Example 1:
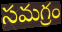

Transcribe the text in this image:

సమగ్రం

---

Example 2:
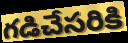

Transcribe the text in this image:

గడిచేసరికి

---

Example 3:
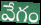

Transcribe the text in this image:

వేగం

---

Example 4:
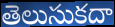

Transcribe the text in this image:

తెలుసుకదా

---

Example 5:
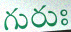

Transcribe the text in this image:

గురుః